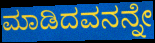
ಮಾಡಿದವನನ್ನೇ